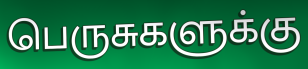
பெருசுகளுக்கு